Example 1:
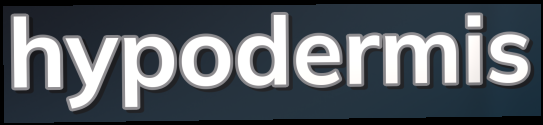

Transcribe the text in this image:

hypodermis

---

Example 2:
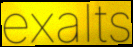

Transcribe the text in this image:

exalts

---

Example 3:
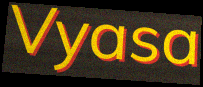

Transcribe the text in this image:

Vyasa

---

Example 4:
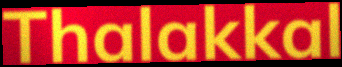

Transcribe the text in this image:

Thalakkal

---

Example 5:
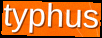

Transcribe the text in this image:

typhus